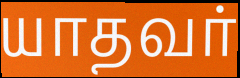
யாதவர்